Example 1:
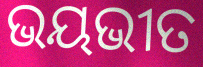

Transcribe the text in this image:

ଭୟଭୀତ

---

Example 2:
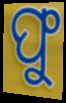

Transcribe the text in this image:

ଫୁ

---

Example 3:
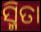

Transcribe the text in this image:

ସ୍ମିତା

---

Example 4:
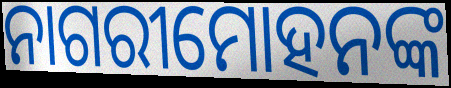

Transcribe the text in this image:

ନାଗରୀମୋହନଙ୍କ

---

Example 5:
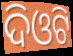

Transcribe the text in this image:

ଦିଓଟି